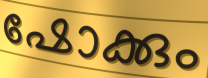
ഷോക്കും